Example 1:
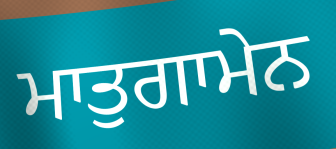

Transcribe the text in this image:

ਮਾਤੁਗਾਮੇਨ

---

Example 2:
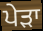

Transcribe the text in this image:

ਪੇੜਾ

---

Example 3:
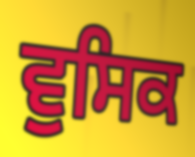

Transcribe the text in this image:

ਵੁਸਿਕ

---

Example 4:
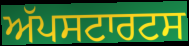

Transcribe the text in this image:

ਅੱਪਸਟਾਰਟਸ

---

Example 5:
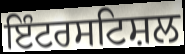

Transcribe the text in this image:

ਇੰਟਰਸਟਿਸ਼ਲ